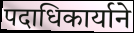
पदाधिकार्याने